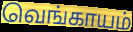
வெங்காயம்